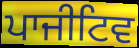
ਪਾਜੀਟਿਵ